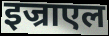
इज्राएल